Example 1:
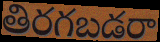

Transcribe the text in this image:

తిరగబడరా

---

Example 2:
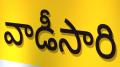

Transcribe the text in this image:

వాడీసారి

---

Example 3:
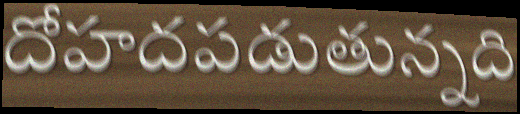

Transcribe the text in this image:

దోహదపడుతున్నది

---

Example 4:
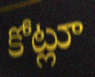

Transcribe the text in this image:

కోట్లూ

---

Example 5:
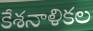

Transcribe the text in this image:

కేశనాళికల